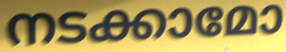
നടക്കാമോ